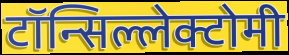
टॉन्सिल्लेक्टोमी